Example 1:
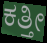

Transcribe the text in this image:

ಕತ್ತೀ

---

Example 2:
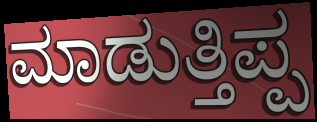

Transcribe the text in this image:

ಮಾಡುತ್ತಿಪ್ಪ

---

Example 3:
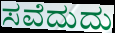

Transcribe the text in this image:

ಸವೆದುದು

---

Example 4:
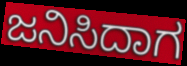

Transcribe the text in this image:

ಜನಿಸಿದಾಗ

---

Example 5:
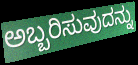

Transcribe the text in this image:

ಅಬ್ಬರಿಸುವುದನ್ನು